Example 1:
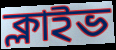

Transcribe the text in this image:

ক্লাইভ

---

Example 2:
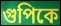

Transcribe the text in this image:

গুপিকে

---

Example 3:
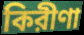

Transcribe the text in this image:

কিরীণা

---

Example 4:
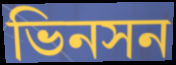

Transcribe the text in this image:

ভিনসন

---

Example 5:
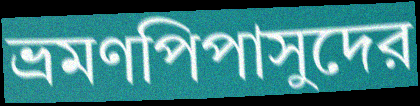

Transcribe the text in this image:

ভ্রমণপিপাসুদের